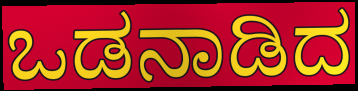
ಒಡನಾಡಿದ